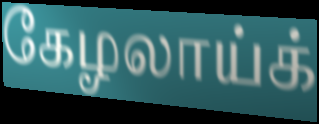
கேழலாய்க்